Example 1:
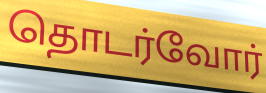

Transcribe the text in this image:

தொடர்வோர்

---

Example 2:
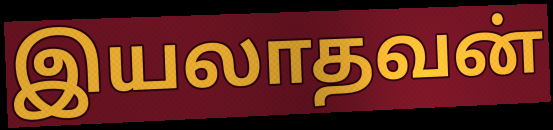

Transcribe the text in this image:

இயலாதவன்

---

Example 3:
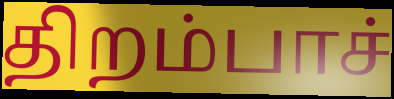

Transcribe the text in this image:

திறம்பாச்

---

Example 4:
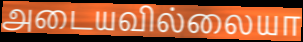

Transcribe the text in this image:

அடையவில்லையா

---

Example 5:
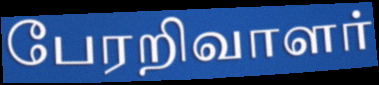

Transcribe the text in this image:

பேரறிவாளர்